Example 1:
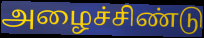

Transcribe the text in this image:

அழைச்சிண்டு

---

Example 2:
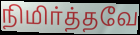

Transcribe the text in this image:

நிமிர்த்தவே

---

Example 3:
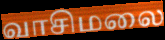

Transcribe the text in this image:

வாசிமலை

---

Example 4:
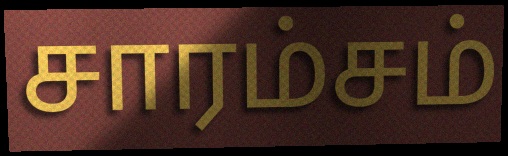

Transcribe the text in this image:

சாரம்சம்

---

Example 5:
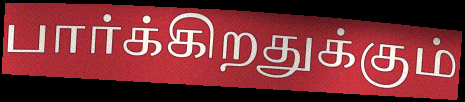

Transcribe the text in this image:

பார்க்கிறதுக்கும்